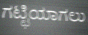
ಗಟ್ಟಿಯಾಗಲು